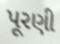
પૂરણી